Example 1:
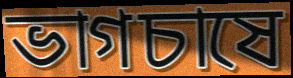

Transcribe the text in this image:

ভাগচাষে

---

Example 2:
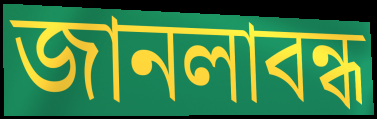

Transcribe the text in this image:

জানলাবন্ধ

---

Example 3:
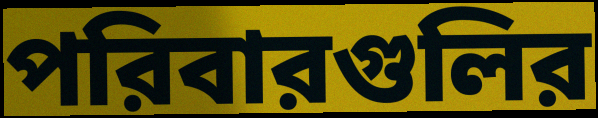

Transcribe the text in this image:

পরিবারগুলির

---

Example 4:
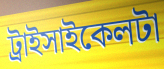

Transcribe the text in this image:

ট্রাইসাইকেলটা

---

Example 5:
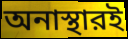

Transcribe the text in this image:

অনাস্থারই